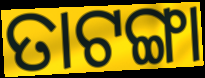
ତାଟଙ୍ଗା